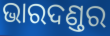
ଭାରଦଣ୍ଡର